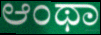
ಆಂಥಾ